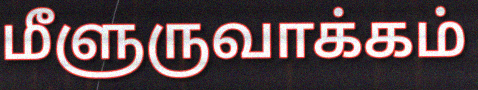
மீளுருவாக்கம்